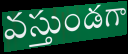
వస్తుండగా